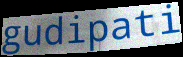
gudipati